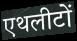
एथलीटों